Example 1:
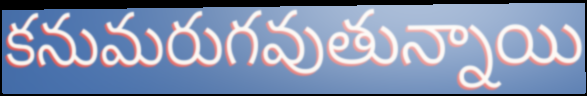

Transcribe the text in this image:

కనుమరుగవుతున్నాయి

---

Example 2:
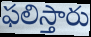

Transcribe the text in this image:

ఫలిస్తారు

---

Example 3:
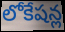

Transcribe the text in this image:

లోకేషన్ల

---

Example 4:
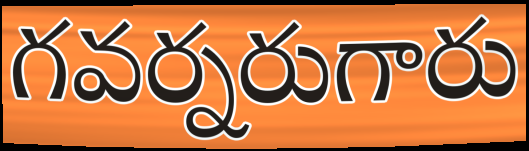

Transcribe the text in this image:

గవర్నరుగారు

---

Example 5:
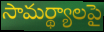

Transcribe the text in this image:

సామర్థ్యాలపై